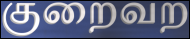
குறைவற